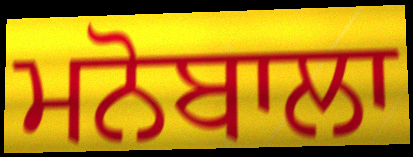
ਮਨੋਬਾਲਾ